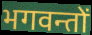
भगवन्तों